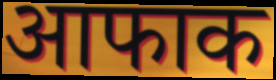
आफाक